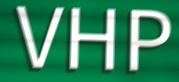
VHP